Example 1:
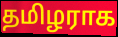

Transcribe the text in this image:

தமிழராக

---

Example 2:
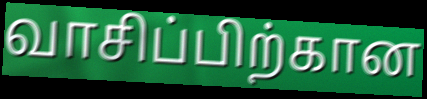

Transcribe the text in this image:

வாசிப்பிற்கான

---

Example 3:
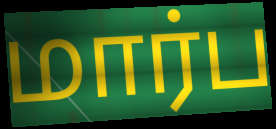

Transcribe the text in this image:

மார்ப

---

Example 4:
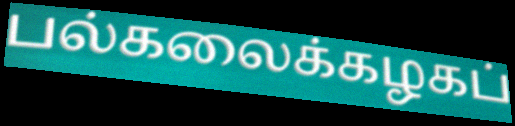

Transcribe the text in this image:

பல்கலைக்கழகப்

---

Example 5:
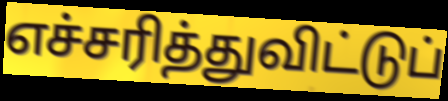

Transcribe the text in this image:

எச்சரித்துவிட்டுப்